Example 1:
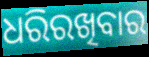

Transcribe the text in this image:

ଧରିରଖିବାର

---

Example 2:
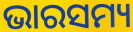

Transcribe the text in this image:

ଭାରସମ୍ୟ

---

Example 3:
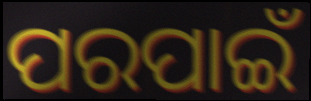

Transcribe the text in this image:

ପରପାଇଁ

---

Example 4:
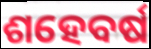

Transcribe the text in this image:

ଶହେବର୍ଷ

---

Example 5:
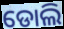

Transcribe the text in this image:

ଡୋଲି